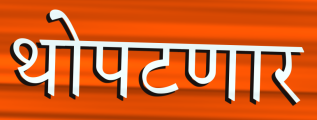
थोपटणार